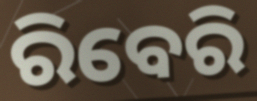
ରିବେରି